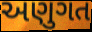
અણુગત